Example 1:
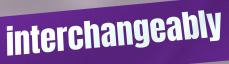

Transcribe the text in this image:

interchangeably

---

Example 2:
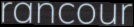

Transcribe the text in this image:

rancour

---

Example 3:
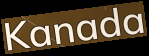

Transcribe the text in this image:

Kanada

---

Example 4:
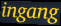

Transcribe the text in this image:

ingang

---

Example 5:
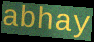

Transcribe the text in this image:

abhay